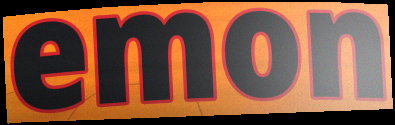
emon